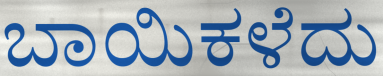
ಬಾಯಿಕಳೆದು